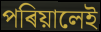
পৰিয়ালেই